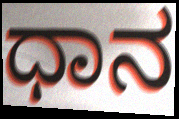
ಧಾನ